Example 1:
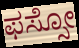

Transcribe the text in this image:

ಫಸ್ಸೋ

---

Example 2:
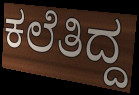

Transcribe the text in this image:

ಕಲೆತಿದ್ದ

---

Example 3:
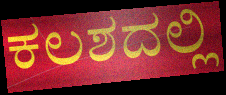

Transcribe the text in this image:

ಕಲಶದಲ್ಲಿ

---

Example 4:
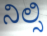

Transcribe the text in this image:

ನಿಲ್ಸಿ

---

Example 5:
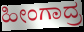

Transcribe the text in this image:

ಹೀಂಗಾದ್ರ